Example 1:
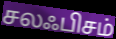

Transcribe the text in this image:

சலஃபிசம்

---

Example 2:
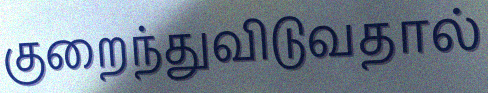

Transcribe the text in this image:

குறைந்துவிடுவதால்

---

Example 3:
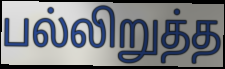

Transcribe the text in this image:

பல்லிறுத்த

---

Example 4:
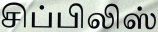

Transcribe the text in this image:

சிப்பிலிஸ்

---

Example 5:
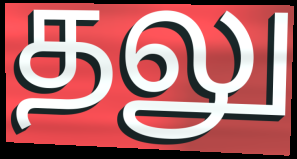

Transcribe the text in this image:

தலு